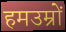
हमउम्रों